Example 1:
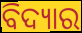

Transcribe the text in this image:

ବିଦ୍ୟାର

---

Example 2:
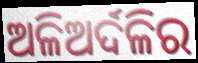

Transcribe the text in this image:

ଅଳିଅର୍ଦଳିର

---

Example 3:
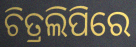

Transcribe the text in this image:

ଚିତ୍ରଲିପିରେ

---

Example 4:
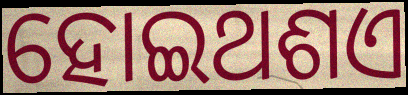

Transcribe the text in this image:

ହୋଇଥଶଏ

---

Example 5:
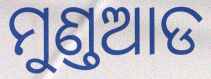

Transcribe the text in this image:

ମୁଣ୍ଡଆଡ